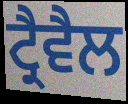
ਟ੍ਰੈਵੈਲ